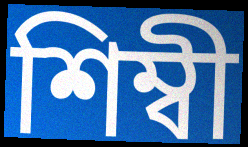
শিম্বী